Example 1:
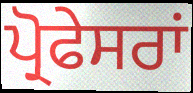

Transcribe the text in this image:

ਪ੍ਰੋਫੇਸਰਾਂ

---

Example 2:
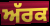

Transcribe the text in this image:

ਅੱਰਕ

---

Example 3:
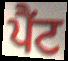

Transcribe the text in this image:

ਪੈਂਟ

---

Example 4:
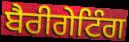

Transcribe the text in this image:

ਬੈਰੀਗੇਟਿੰਗ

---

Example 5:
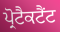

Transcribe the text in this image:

ਪ੍ਰੋਟੈਕਟੈਂਟ